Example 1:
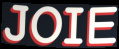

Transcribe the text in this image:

JOIE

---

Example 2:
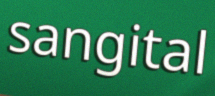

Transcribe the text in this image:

sangital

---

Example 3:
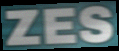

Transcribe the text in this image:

ZES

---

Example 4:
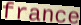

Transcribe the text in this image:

france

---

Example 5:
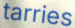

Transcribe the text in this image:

tarries